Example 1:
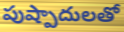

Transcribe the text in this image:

పుష్పాదులతో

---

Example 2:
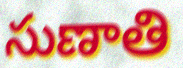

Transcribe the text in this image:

సుణాతి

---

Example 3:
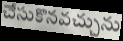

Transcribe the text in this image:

చేసుకొనవచ్చును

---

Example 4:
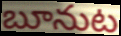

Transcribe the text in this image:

బూనుట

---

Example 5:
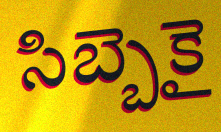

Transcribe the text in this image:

సిబ్బెకై